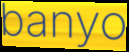
banyo